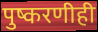
पुष्करणीही